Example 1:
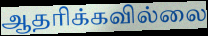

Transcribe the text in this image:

ஆதரிக்கவில்லை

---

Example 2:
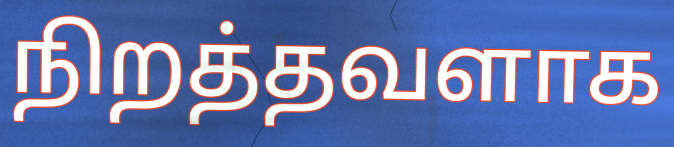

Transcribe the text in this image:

நிறத்தவளாக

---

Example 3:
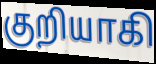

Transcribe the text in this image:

குறியாகி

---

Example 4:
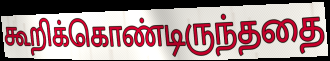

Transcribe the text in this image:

கூறிக்கொண்டிருந்ததை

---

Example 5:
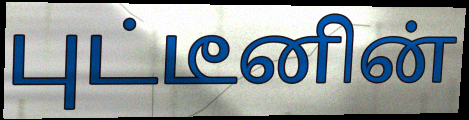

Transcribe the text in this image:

புட்டீனின்